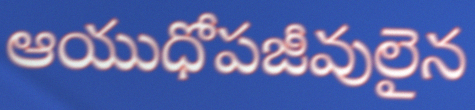
ఆయుధోపజీవులైన